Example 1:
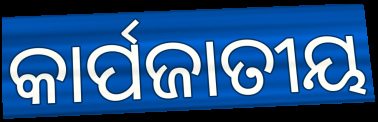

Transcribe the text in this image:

କାର୍ପଜାତୀୟ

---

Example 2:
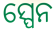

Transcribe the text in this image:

ସ୍ପେନ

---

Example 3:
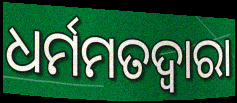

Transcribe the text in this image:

ଧର୍ମମତଦ୍ୱାରା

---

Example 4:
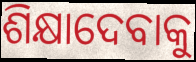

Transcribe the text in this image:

ଶିକ୍ଷାଦେବାକୁ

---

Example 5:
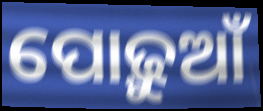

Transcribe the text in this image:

ପୋଢ଼ୁଆଁ